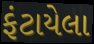
ફંટાયેલા